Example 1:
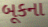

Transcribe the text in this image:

બૂકના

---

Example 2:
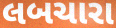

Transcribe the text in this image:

લબચારા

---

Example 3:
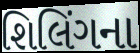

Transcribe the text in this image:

શિલિંગના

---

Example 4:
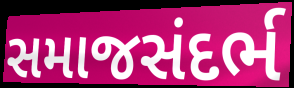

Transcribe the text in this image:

સમાજસંદર્ભ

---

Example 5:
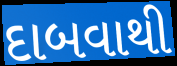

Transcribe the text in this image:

દાબવાથી